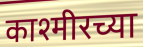
काश्मीरच्या